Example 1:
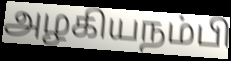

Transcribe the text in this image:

அழகியநம்பி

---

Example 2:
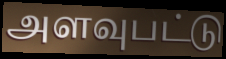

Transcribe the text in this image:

அளவுபட்டு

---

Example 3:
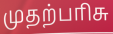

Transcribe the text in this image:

முதற்பரிசு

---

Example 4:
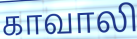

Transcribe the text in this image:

காவாலி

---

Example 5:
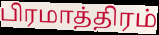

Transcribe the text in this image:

பிரமாத்திரம்